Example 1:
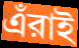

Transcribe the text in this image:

এঁরাই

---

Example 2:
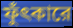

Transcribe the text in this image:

ফুঁৎকারে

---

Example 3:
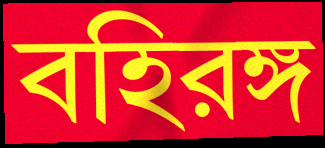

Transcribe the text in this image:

বহিরঙ্গ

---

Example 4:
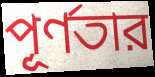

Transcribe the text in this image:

পূর্ণতার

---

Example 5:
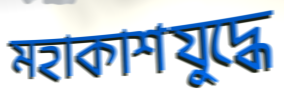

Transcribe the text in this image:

মহাকাশযুদ্ধে